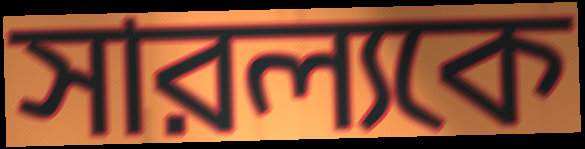
সারল্যকে